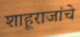
शाहूराजांचे